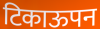
टिकाऊपन